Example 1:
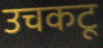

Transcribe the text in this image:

उचकटू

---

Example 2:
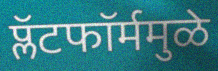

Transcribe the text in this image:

प्लॅटफॉर्ममुळे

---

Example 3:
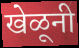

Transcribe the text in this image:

खेळूनी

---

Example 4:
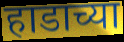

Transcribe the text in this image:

हाडाच्या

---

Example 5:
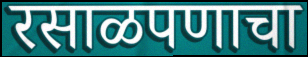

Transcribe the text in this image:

रसाळपणाचा